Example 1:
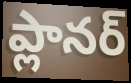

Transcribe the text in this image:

ప్లానర్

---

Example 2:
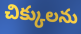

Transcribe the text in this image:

చిక్కులను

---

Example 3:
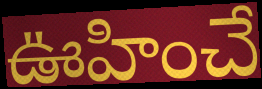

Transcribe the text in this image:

ఊహించే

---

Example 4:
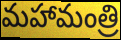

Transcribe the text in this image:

మహామంత్రి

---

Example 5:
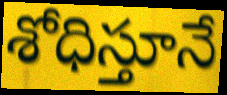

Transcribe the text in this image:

శోధిస్తూనే